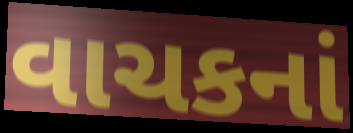
વાચકનાં